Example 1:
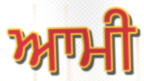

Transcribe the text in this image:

ਆਮੀ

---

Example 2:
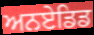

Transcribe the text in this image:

ਅਨਏਡਿਡ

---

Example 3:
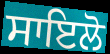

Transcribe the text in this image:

ਸਾਇਲੋ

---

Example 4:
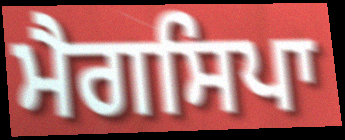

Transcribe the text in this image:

ਮੈਗਸਿਪਾ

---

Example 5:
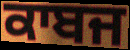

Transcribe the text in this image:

ਕਾਬਜ